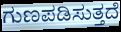
ಗುಣಪಡಿಸುತ್ತದೆ